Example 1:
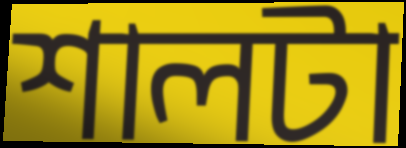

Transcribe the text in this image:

শালটা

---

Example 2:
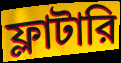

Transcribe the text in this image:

ফ্লাটারি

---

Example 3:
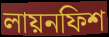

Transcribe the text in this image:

লায়নফিশ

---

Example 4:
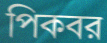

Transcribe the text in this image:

পিকবর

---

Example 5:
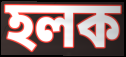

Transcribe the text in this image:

হলক